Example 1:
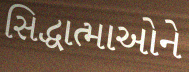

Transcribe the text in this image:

સિદ્ધાત્માઓને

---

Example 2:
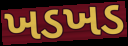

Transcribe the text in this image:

ખડખડ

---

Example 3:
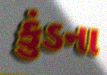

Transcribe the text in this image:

કુંડના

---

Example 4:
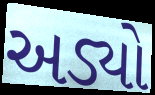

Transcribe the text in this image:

અડ્યો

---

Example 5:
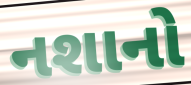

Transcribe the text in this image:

નશાનો